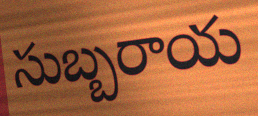
సుబ్బరాయ